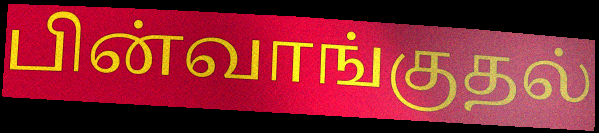
பின்வாங்குதல்